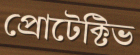
প্রোটেক্টিভ